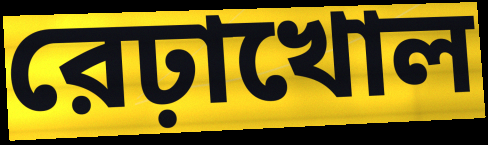
রেঢ়াখোল